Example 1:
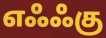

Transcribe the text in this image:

எஃஃகு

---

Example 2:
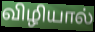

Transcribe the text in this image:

விழியால்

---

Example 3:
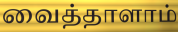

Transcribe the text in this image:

வைத்தாளாம்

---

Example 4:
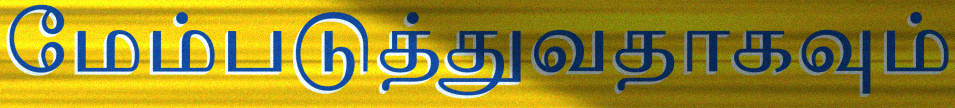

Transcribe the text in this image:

மேம்படுத்துவதாகவும்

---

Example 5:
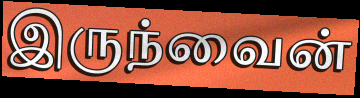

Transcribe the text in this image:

இருந்வைன்